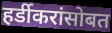
हर्डीकरांसोबत